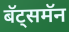
बॅट्समॅन